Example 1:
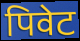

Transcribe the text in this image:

पिवेट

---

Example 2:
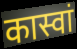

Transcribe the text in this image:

कास्वां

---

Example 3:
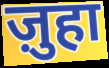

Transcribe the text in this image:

ज़ुहा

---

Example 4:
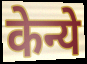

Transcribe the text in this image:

केन्ये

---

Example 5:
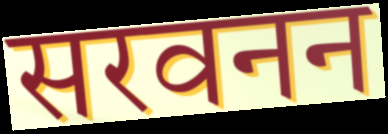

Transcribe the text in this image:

सरवनन